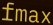
fmax